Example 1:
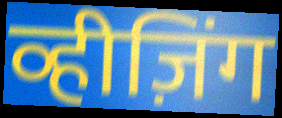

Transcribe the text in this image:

व्हीज़िंग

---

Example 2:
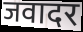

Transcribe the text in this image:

जवादर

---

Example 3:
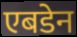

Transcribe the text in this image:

एबडेन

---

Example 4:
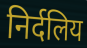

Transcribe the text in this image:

निर्दलिय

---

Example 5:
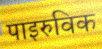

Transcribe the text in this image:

पाइरुविक